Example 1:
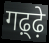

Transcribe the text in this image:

गढ़्ढ़े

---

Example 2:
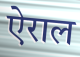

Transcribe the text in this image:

ऐराल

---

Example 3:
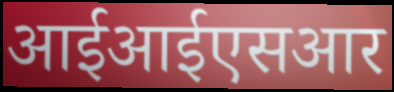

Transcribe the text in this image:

आईआईएसआर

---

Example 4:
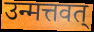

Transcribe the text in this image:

उन्मत्तवत्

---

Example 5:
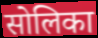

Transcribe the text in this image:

सोलिका